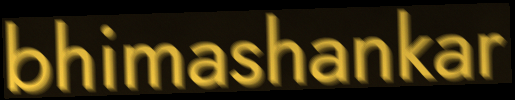
bhimashankar